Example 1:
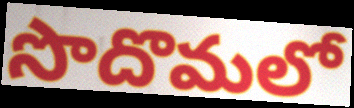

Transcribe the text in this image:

సొదొమలో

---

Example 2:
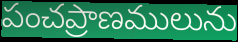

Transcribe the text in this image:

పంచప్రాణములును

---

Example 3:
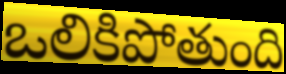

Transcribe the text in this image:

ఒలికిపోతుంది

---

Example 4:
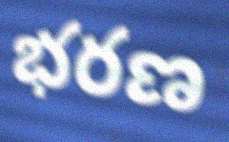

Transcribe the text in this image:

భరణ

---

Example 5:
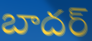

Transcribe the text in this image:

బాదర్